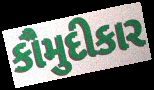
કૌમુદીકાર